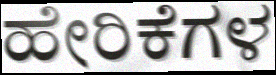
ಹೇರಿಕೆಗಳ